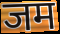
जम